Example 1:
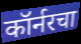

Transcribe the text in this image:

कॉर्नरचा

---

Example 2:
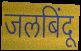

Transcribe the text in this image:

जलबिंदू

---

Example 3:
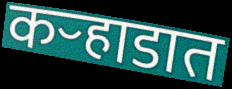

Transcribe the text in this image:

कऱ्हाडात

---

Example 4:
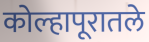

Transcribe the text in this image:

कोल्हापूरातले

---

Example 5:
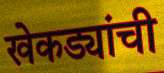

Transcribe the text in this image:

खेकड्यांची